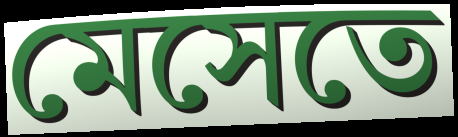
মেসেতে